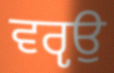
ਵਰੵਉ